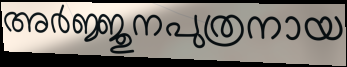
അർജ്ജുനപുത്രനായ